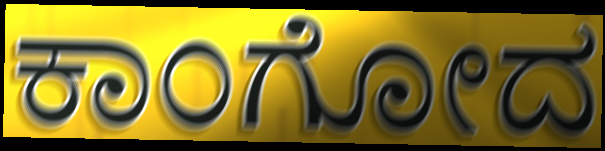
ಕಾಂಗೋದ